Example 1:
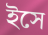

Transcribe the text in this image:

ইসে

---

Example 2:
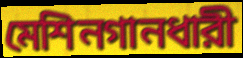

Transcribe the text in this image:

মেশিনগানধারী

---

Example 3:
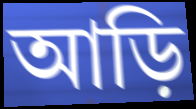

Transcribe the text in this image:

আড়ি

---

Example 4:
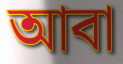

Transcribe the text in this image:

আবা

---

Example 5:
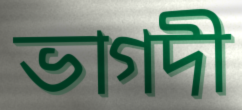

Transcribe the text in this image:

ভাগদী